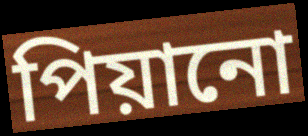
পিয়ানো